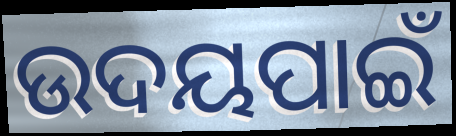
ଉଦୟପାଇଁ